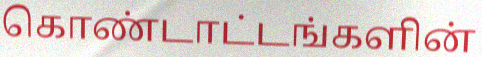
கொண்டாட்டங்களின்